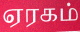
ஏரகம்